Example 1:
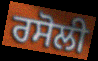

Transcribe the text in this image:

ਰਸੋਲੀ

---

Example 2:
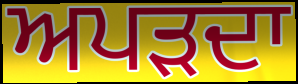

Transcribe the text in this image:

ਅਪੜਦਾ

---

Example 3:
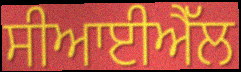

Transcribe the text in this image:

ਸੀਆਈਐੱਲ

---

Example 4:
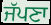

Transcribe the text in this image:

ਜੱਪਣਾ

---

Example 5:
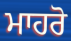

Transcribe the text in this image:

ਮਾਹਰੋ